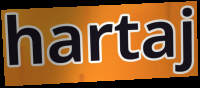
hartaj